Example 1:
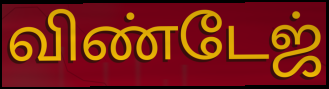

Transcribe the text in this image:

விண்டேஜ்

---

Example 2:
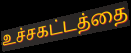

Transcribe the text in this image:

உச்சகட்டத்தை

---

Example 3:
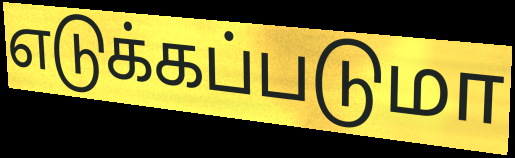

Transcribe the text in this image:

எடுக்கப்படுமா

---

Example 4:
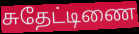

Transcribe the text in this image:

சுதேட்டிணை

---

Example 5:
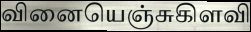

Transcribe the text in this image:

வினையெஞ்சுகிளவி